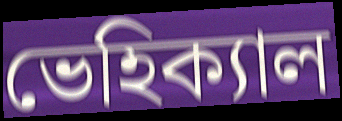
ভেহিক্যাল